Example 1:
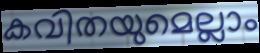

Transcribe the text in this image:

കവിതയുമെല്ലാം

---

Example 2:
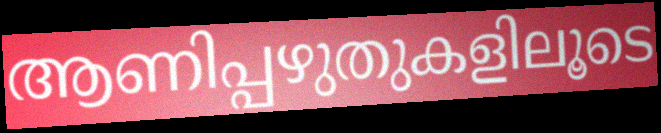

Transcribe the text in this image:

ആണിപ്പഴുതുകളിലൂടെ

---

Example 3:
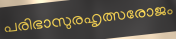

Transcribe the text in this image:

പരിഭാസുരഹൃത്സരോജം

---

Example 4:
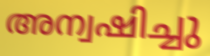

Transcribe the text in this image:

അന്വഷിച്ചു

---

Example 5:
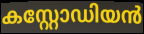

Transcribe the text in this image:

കസ്റ്റോഡിയൻ